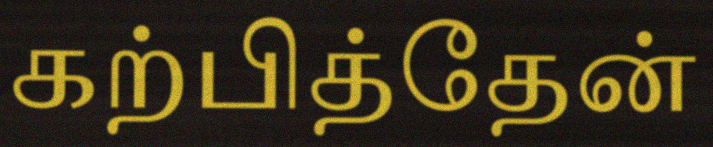
கற்பித்தேன்